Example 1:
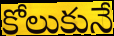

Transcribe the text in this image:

కోలుకునే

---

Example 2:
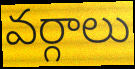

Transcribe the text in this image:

వర్గాలు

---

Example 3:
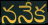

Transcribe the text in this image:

ననేక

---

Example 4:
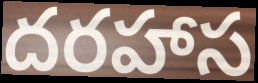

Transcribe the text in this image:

దరహాస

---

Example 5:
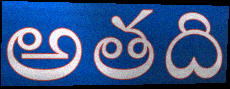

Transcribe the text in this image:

అతది